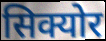
सिक्योर